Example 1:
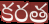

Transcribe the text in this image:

కరత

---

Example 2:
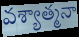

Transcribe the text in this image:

వశ్యాత్మనా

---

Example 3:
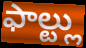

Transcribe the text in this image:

ఫాల్ట్లు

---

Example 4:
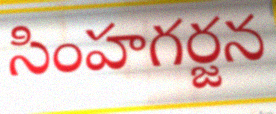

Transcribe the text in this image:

సింహగర్జన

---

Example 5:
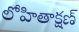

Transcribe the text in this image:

లోహితాక్షణ్